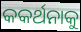
କକର୍ଥନାକୁ